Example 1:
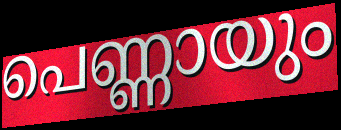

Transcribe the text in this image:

പെണ്ണായും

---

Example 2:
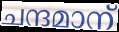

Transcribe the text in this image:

ചന്ദമാന്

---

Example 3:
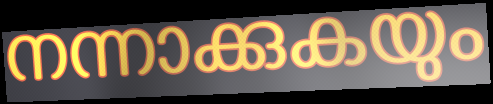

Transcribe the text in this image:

നന്നാക്കുകയും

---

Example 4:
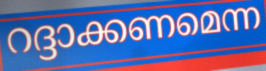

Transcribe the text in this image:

റദ്ദാക്കണമെന്ന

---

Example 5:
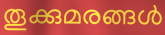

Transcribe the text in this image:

തൂക്കുമരങ്ങൾ